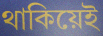
থাকিয়েই